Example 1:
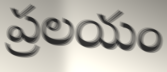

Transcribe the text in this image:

ప్రలయం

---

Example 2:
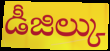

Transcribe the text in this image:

డీజిల్కు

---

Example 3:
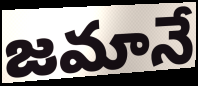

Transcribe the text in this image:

జమానే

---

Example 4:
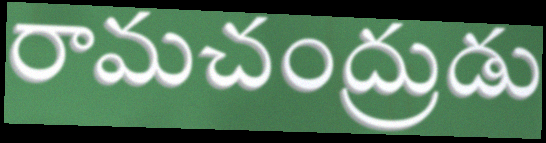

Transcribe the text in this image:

రామచంద్రుడు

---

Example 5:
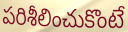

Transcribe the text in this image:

పరిశీలించుకొంటే